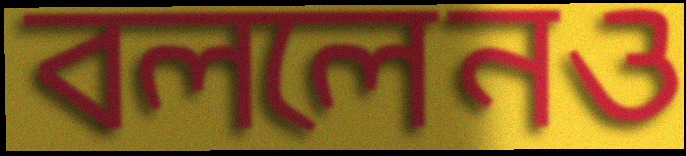
বললেনও